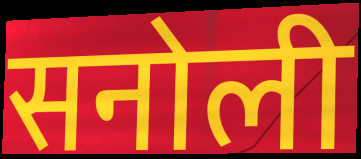
सनोली